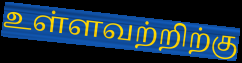
உள்ளவற்றிற்கு